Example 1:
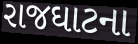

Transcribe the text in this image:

રાજઘાટના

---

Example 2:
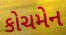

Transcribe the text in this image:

કોચમેન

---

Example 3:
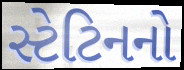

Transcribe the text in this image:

સ્ટેટિનનો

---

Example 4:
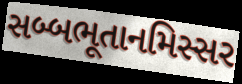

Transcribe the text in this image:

સબ્બભૂતાનમિસ્સર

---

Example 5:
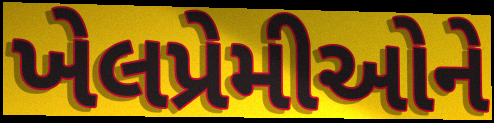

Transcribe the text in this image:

ખેલપ્રેમીઓને